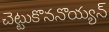
చెట్టుకొననొయ్యన్